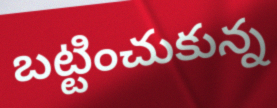
బట్టించుకున్న